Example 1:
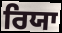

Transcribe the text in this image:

ਰਿਯਾ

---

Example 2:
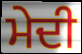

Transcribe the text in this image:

ਮੇਦੀ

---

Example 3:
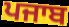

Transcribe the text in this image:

ਪਜਾਬ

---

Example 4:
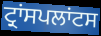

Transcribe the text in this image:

ਟ੍ਰਾਂਸਪਲਾਂਟਸ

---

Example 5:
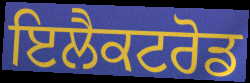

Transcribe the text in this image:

ਇਲੈਕਟਰੋਡ